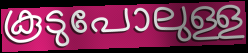
കൂടുപോലുള്ള